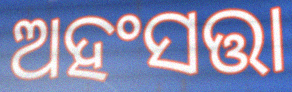
ଅହଂସତ୍ତା